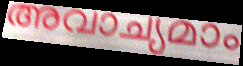
അവാച്യമാം